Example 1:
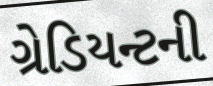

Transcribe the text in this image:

ગ્રેડિયન્ટની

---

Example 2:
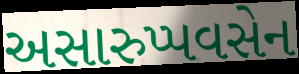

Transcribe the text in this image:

અસારુપ્પવસેન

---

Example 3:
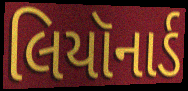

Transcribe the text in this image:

લિયૉનાર્ડ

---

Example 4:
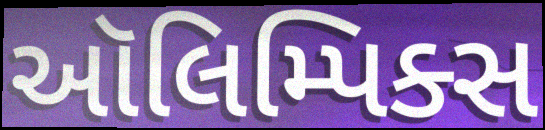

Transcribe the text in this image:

ઑલિમ્પિક્સ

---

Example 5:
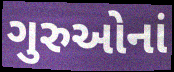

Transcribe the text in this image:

ગુરુઓનાં